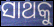
ସାଥକୁ